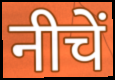
नीचें